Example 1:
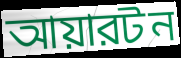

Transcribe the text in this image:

আয়ারটন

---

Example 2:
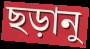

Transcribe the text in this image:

ছড়ানু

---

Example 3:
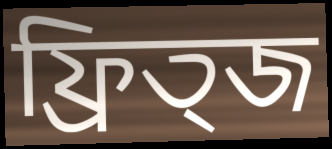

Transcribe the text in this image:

ফ্রিত্জ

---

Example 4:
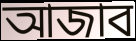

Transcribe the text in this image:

আজাব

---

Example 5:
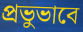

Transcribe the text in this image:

প্রভুভাবে